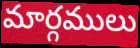
మార్గములు